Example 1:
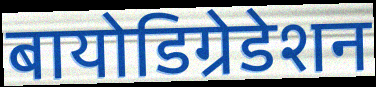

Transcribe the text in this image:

बायोडिग्रेडेशन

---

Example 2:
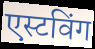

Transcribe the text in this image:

एस्टविंग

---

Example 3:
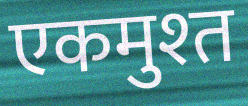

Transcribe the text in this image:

एकमुश्‍त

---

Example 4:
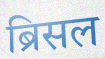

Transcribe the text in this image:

ब्रिसल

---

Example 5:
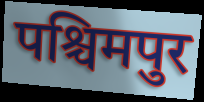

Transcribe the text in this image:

पश्चिमपुर